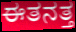
ಈತನತ್ತ